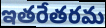
ఇతరేతరమ